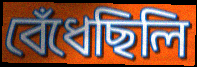
বেঁধেছিলি